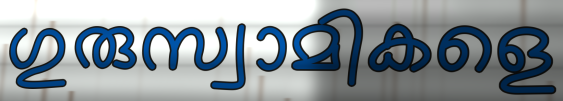
ഗുരുസ്വാമികളെ